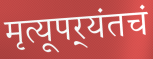
मृत्यूपर्यंतचं